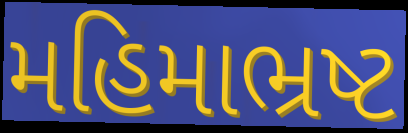
મહિમાભ્રષ્ટ